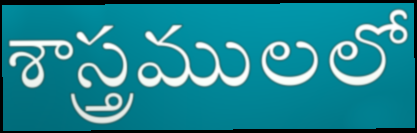
శాస్త్రములలో